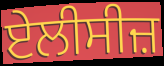
ਏਲੀਸੀਜ਼